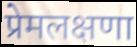
प्रेमलक्षणा